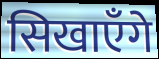
सिखाएँगे